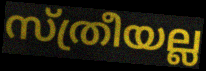
സ്ത്രീയല്ല